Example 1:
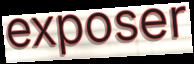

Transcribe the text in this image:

exposer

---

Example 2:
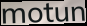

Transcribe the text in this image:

motun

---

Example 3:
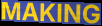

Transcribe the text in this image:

MAKING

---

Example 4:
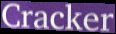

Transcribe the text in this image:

Cracker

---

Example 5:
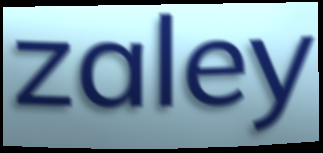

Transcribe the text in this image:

zaley